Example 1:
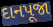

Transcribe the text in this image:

દાનપૂજા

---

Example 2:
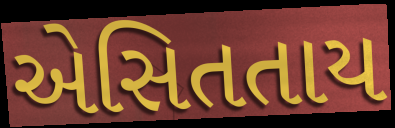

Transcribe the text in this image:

એસિતતાય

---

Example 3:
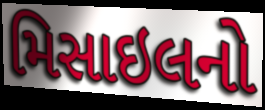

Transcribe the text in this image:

મિસાઇલનો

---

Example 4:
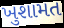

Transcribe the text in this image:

ખુશામત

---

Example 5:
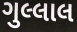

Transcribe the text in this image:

ગુલ્લાલ